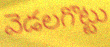
వెడలగొట్టు